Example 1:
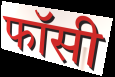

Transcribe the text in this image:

फॉसी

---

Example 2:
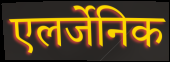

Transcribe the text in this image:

एलर्जेनिक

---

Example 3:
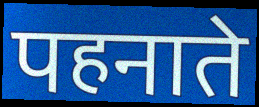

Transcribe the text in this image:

पहनाते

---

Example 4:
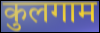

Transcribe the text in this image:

कुलगाम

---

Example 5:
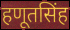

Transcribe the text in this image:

हणूतसिंह